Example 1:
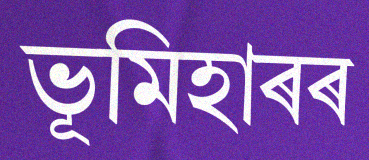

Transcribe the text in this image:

ভূমিহাৰৰ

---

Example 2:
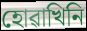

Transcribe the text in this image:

হোৱাখিনি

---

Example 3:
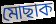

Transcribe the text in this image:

মোছাক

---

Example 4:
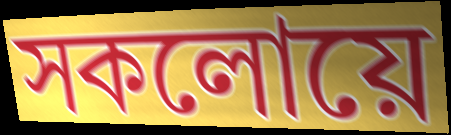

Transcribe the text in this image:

সকলোয়ে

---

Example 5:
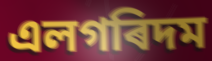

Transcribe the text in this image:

এলগৰিদম